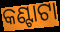
କଣ୍ଟାଟା